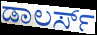
ಡಾಲರ್ಸ್